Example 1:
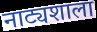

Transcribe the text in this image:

नाट्यशाला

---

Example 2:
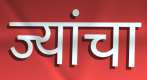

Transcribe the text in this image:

ज्यांचा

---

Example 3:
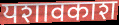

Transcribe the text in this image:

यशावकाश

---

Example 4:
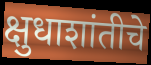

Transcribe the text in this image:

क्षुधाशांतीचे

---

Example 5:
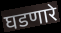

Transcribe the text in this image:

घडणारे